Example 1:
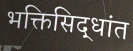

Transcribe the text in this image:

भक्तिसिद्धांत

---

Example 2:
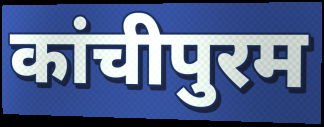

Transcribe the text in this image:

कांचीपुरम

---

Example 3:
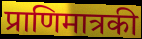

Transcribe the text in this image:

प्राणिमात्रकी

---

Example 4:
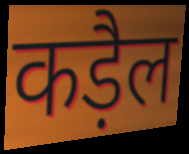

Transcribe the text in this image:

कड़ैल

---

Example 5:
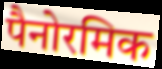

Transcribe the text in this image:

पैनोरमिक